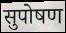
सुपोषण